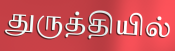
துருத்தியில்